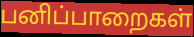
பனிப்பாறைகள்